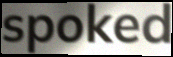
spoked